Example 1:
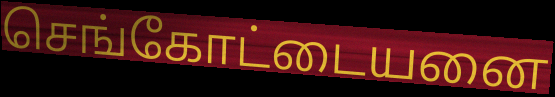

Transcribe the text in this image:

செங்கோட்டையனை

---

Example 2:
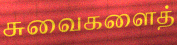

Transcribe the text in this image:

சுவைகளைத்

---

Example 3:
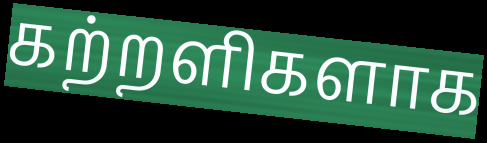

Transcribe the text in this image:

கற்றளிகளாக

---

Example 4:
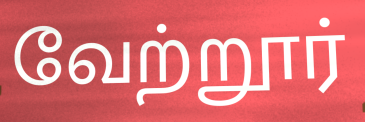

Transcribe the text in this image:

வேற்றூர்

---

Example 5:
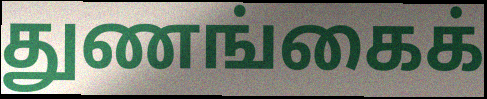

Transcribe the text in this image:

துணங்கைக்